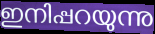
ഇനിപ്പറയുന്നു